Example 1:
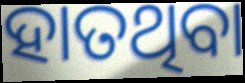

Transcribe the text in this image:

ହାତଥିବା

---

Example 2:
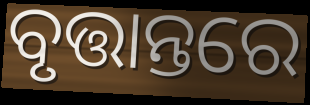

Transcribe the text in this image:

ବୃତ୍ତାନ୍ତରେ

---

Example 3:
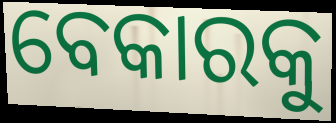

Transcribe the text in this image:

ବେକାରକୁ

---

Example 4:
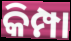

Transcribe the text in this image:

କିମ୍ପା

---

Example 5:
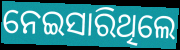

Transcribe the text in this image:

ନେଇସାରିଥିଲେ